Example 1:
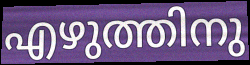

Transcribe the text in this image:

എഴുത്തിനു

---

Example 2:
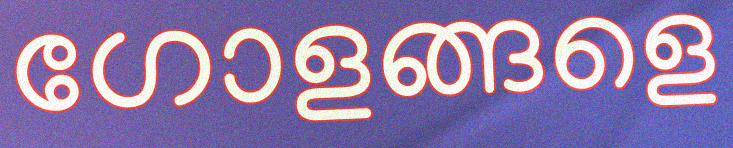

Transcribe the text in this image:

ഗോളങ്ങളെ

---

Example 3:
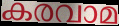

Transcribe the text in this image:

കരവാമ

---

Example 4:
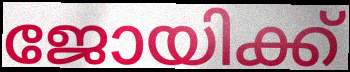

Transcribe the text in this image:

ജോയിക്ക്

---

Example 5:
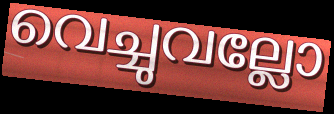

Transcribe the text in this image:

വെച്ചുവല്ലോ